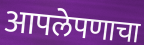
आपलेपणाचा